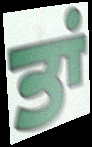
ਤਾਂ